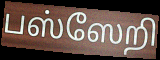
பஸ்ஸேறி